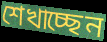
শেখাচ্ছেন